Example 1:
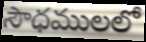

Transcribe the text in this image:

సౌధములలో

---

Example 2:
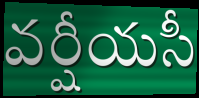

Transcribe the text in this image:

వర్షీయసీ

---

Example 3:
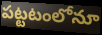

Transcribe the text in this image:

పట్టటంలోనూ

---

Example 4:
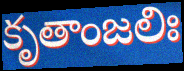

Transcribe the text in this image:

కృతాంజలిః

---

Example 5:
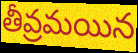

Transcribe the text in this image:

తీవ్రమయిన